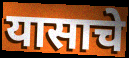
यासाचे